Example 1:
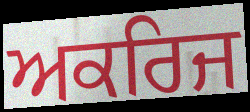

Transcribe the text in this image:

ਅਕਰਿਜ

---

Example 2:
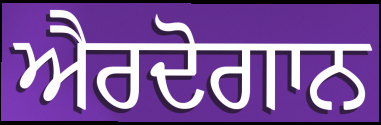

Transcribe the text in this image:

ਐਰਦੋਗਾਨ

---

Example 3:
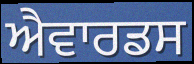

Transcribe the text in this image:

ਐਵਾਰਡਸ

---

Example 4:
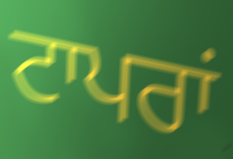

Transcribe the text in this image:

ਟਾਪਰਾਂ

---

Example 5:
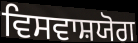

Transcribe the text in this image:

ਵਿਸਵਾਸ਼ਯੋਗ